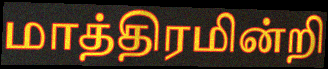
மாத்திரமின்றி